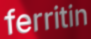
ferritin